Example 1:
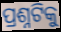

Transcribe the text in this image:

ପ୍ରଶ୍ନଟିକୁ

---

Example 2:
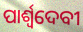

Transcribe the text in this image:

ପାର୍ଶ୍ୱଦେବୀ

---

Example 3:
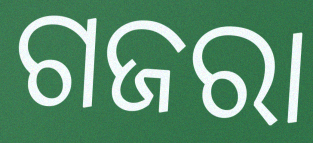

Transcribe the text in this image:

ଗଜରା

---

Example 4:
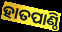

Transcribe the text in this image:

ହାତପାଣ୍ଠି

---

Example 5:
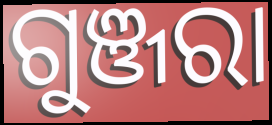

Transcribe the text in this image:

ଗୁଞ୍ଜରା